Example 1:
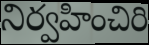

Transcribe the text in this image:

నిర్వహించిరి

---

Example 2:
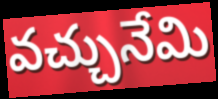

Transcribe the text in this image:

వచ్చునేమి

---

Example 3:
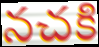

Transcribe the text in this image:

నచకి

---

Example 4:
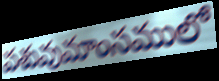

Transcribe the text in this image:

పశువుమాంసములో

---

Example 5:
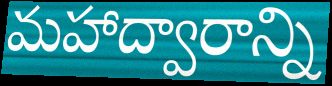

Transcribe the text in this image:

మహాద్వారాన్ని